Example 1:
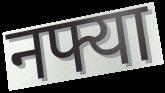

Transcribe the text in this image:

नफ्या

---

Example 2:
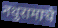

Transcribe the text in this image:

नथुरामाचे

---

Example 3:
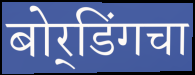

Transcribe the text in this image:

बोर्डिंगचा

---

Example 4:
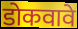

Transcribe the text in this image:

डोकवावे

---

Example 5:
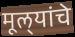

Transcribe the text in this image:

मूल्यांचे